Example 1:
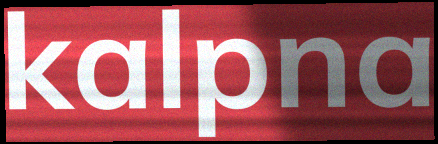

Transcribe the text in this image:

kalpna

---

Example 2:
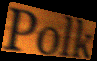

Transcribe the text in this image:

Polk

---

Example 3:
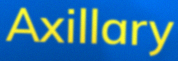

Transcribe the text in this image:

Axillary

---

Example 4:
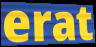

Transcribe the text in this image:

erat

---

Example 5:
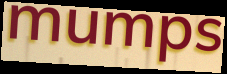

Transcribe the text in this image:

mumps